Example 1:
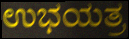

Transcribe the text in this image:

ಉಭಯತ್ರ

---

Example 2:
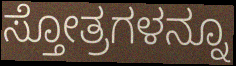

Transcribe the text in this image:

ಸ್ತೋತ್ರಗಳನ್ನೂ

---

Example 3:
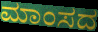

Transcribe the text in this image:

ಮಾಂಸದ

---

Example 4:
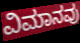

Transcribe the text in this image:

ವಿಮಾನವು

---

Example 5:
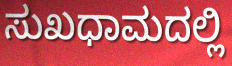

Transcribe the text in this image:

ಸುಖಧಾಮದಲ್ಲಿ